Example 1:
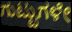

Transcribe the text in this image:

ಗುಟ್ಟುಗಳೇ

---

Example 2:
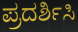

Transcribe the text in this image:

ಪ್ರದರ್ಶಿಸಿ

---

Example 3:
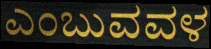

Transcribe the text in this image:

ಎಂಬುವವಳ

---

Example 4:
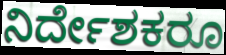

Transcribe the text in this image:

ನಿರ್ದೇಶಕರೂ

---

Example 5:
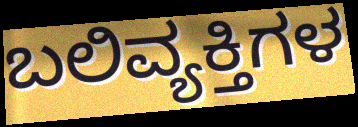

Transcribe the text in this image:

ಬಲಿವ್ಯಕ್ತಿಗಳ